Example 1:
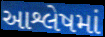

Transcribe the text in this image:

આશ્લેષમાં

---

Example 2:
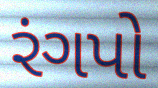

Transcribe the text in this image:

રંગપો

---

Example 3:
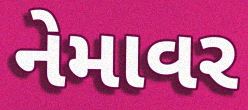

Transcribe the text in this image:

નેમાવર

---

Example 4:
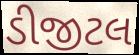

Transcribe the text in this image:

ડીજીટલ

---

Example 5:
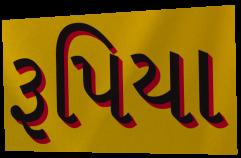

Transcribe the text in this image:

રૂપિયા